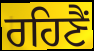
ਰਹਿਣੈਂ